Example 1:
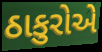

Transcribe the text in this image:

ઠાકુરોએ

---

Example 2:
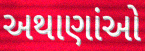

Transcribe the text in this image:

અથાણાંઓ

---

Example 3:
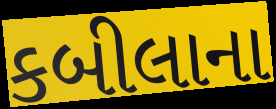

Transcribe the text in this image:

કબીલાના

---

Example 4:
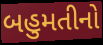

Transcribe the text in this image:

બહુમતીનો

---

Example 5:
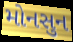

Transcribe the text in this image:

મોનસુન